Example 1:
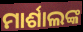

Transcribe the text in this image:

ମାର୍ଶାଲଙ୍କ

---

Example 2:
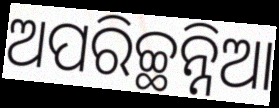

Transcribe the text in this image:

ଅପରିଚ୍ଛନ୍ନିଆ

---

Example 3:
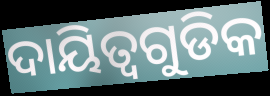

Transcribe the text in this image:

ଦାୟିତ୍ୱଗୁଡିକ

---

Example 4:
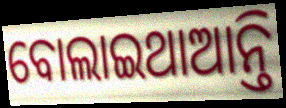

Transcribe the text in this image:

ବୋଲାଇଥାଆନ୍ତି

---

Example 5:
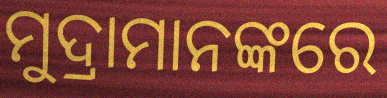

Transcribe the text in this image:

ମୁଦ୍ରାମାନଙ୍କରେ